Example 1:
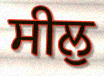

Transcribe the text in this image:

ਸੀਲੁ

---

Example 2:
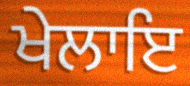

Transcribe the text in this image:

ਖੇਲਾਇ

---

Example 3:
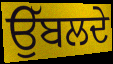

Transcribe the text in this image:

ਉੱਬਲਦੇ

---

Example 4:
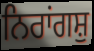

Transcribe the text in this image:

ਨਿਰਾਂਗਸ਼ੁ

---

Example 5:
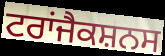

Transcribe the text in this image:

ਟਰਾਂਜੈਕਸ਼ਨਸ